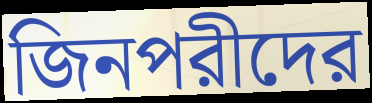
জিনপরীদের